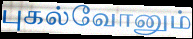
புகல்வோனும்